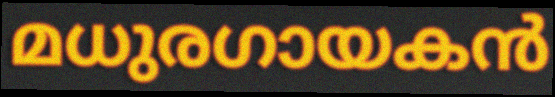
മധുരഗായകൻ